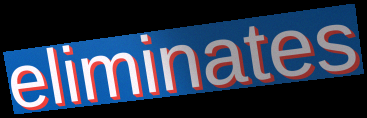
eliminates